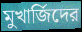
মুখার্জিদের